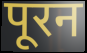
पूरन